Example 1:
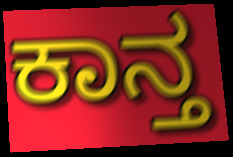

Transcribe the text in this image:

ಕಾನ್ತ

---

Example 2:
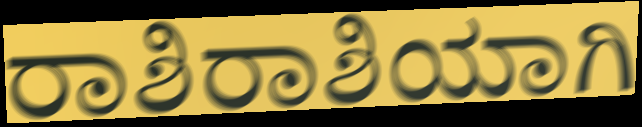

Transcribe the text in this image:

ರಾಶಿರಾಶಿಯಾಗಿ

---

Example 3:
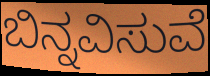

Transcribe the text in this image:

ಬಿನ್ನವಿಸುವೆ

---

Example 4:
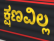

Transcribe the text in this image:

ಕ್ಷಣವಿಲ್ಲ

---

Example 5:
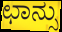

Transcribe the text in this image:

ಛಾನ್ಸು